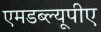
एमडब्ल्यूपीए